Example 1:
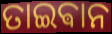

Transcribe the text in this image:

ତାଇଵାନ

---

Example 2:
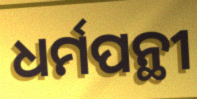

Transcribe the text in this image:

ଧର୍ମପନ୍ଥୀ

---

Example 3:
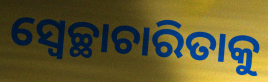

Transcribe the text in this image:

ସ୍ଵେଚ୍ଛାଚାରିତାକୁ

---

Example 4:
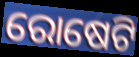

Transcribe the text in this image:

ରୋଷେଟି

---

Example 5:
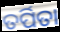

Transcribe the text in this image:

ତର୍ପିତା